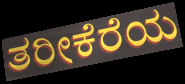
ತರೀಕೆರೆಯ